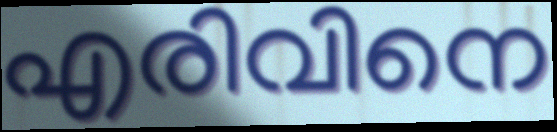
എരിവിനെ